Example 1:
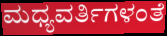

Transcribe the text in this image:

ಮಧ್ಯವರ್ತಿಗಳಂತೆ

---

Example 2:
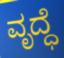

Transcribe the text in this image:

ವೃದ್ಧೆ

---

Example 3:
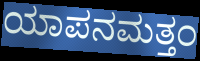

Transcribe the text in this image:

ಯಾಪನಮತ್ತಂ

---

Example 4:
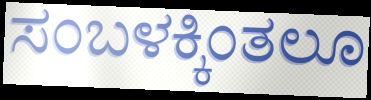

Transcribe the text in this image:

ಸಂಬಳಕ್ಕಿಂತಲೂ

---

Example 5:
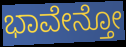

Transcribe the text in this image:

ಭಾವೇನ್ತೋ